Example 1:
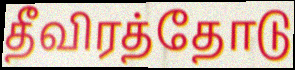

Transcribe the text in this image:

தீவிரத்தோடு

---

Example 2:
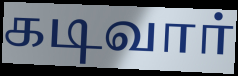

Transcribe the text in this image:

கடிவார்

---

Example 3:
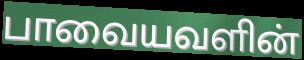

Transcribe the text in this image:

பாவையவளின்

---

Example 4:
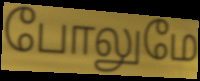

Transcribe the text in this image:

போலுமே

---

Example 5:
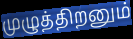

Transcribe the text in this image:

முழுத்திறனும்